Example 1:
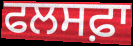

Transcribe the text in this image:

ਫਲਸਫ਼ਾ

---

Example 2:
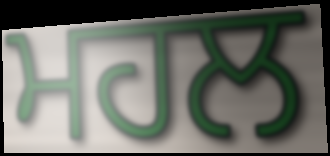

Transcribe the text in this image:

ਮਹਲ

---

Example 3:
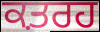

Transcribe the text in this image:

ਕ਼ਤਰਹ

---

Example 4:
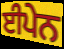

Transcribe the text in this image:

ਈਪੇਨ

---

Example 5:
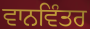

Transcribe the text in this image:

ਵਾਨਵਿੰਤਰ